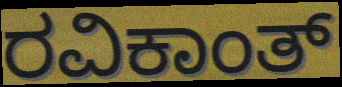
ರವಿಕಾಂತ್